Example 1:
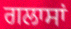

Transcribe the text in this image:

ਗਲਾਸਾਂ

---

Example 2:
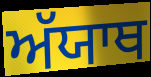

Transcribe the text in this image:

ਅੱਯਾਥ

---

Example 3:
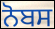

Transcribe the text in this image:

ਨੋਬਸ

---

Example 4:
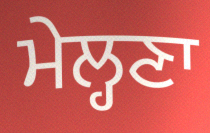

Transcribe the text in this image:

ਮੇਲ੍ਹਣਾ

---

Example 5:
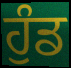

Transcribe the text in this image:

ਹੁੰਡ